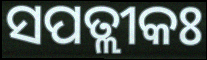
ସପତ୍ଲୀକଃ